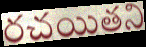
రచయితని